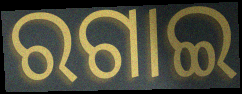
ରଗାଇ